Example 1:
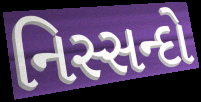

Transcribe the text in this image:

નિસ્સન્દો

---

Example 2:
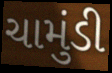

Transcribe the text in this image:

ચામુંડી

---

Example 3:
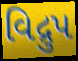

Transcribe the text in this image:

વિદ્રુપ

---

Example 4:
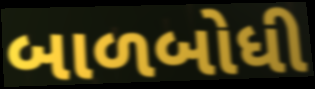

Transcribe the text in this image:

બાળબોધી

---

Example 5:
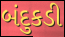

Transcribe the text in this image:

બંદુકડી